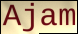
Ajam